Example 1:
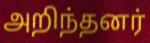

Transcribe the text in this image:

அறிந்தனர்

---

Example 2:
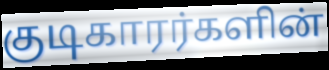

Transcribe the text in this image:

குடிகாரர்களின்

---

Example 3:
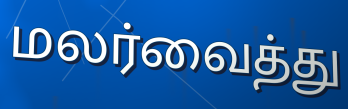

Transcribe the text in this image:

மலர்வைத்து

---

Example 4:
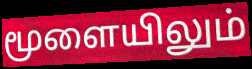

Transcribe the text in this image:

மூளையிலும்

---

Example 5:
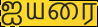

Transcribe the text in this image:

ஐயரை